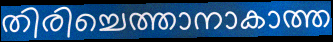
തിരിച്ചെത്താനാകാത്ത